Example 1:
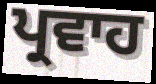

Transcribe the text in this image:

ਪ੍ਰਵਾਹ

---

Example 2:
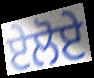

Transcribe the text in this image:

ਏਲੋਏ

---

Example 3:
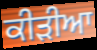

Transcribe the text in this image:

ਕੀੜੀਆ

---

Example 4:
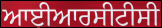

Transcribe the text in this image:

ਆਈਆਰਸੀਟੀਸੀ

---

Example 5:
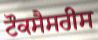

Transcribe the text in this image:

ਟੌਕਸੈਸਰੀਸ